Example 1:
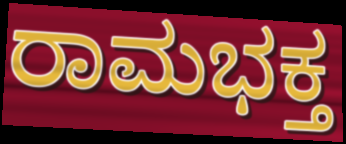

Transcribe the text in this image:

ರಾಮಭಕ್ತ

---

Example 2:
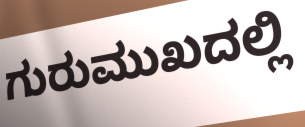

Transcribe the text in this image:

ಗುರುಮುಖದಲ್ಲಿ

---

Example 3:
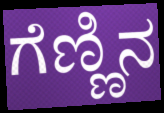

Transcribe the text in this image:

ಗೆಣ್ಣಿನ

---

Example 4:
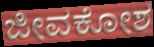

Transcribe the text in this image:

ಜೀವಕೋಶ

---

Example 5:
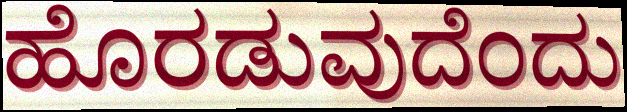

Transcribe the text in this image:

ಹೊರಡುವುದೆಂದು